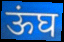
ऊंघ